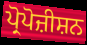
ਪ੍ਰੋਪੋਜ਼ੀਸ਼ਨ